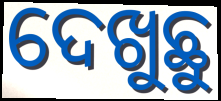
ଦେଖୁଛୁ